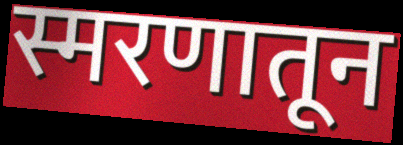
स्मरणातून